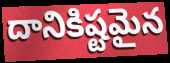
దానికిష్టమైన